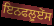
ਇਨਫਲੂਏਂਸ